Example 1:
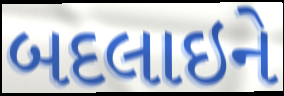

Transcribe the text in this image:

બદલાઇને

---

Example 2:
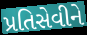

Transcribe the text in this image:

પ્રતિસેવીને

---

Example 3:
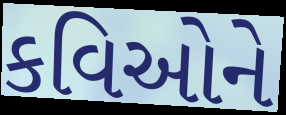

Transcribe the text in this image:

કવિઓને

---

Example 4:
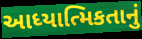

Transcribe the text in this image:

આધ્યાત્મિકતાનું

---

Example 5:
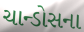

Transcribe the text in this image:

ચાન્ડોસના